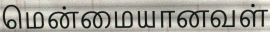
மென்மையானவள்